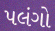
પલંગો